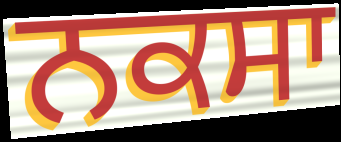
ਨਕਸਾ